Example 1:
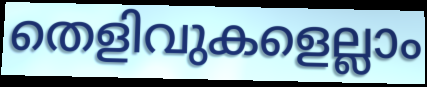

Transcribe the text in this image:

തെളിവുകളെല്ലാം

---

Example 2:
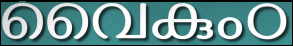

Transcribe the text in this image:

വൈകുംഠ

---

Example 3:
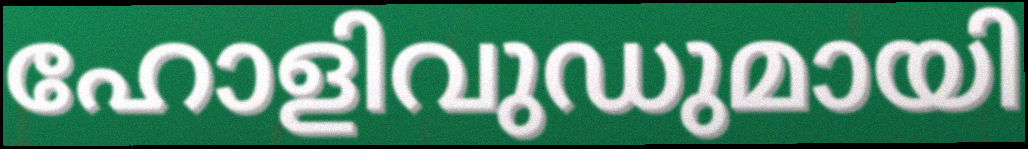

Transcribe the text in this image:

ഹോളിവുഡുമായി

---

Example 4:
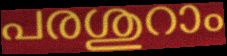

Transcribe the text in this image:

പരശുറാം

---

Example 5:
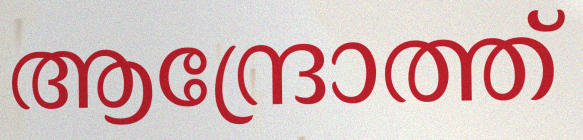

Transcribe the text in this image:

ആന്ദ്രോത്ത്